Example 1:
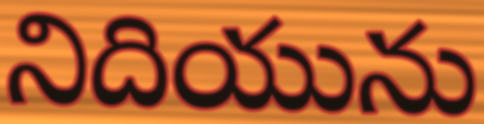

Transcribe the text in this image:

నిదియును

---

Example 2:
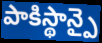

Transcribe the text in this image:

పాకిస్థాన్పై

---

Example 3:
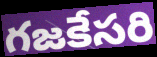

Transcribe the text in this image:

గజకేసరి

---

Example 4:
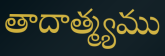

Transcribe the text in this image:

తాదాత్మ్యము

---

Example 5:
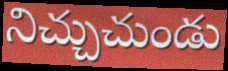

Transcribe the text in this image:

నిచ్చుచుండు